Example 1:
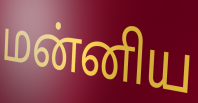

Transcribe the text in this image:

மன்னிய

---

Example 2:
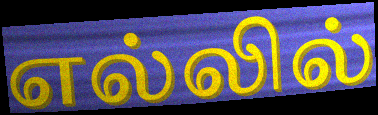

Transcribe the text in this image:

எல்லில்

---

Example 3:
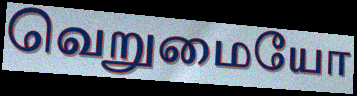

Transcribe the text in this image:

வெறுமையோ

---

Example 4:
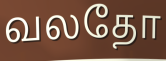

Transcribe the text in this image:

வலதோ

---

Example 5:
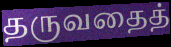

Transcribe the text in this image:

தருவதைத்